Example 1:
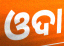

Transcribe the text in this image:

ଓଦା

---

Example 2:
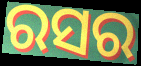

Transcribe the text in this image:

ରସର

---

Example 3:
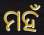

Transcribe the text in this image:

ମହଁ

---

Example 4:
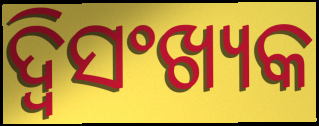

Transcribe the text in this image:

ଦ୍ୱିସଂଖ୍ୟକ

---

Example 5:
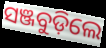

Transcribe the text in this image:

ସଞ୍ଜବୁଡ଼ିଲେ